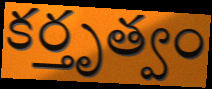
కర్తృత్వం